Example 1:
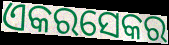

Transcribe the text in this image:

ଏକରସେକର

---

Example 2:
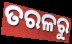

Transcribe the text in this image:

ତରଳରୁ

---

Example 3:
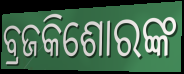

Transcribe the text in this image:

ବ୍ରଜକିଶୋରଙ୍କ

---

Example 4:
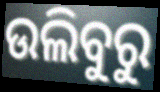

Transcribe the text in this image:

ଉଲିବୁରୁ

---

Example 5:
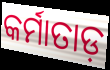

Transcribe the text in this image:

କର୍ମାତାଡ଼